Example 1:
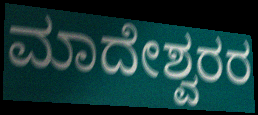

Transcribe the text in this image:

ಮಾದೇಶ್ವರರ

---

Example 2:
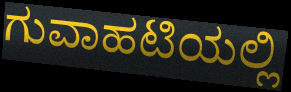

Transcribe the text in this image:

ಗುವಾಹಟಿಯಲ್ಲಿ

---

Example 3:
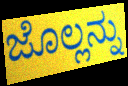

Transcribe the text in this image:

ಜೊಲ್ಲನ್ನು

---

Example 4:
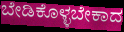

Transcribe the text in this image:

ಬೇಡಿಕೊಳ್ಳಬೇಕಾದ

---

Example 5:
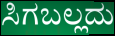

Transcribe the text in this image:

ಸಿಗಬಲ್ಲದು